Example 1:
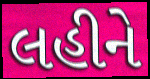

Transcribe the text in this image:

લહીને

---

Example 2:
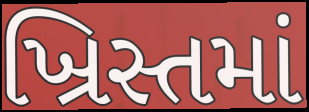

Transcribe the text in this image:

ખ્રિસ્તમાં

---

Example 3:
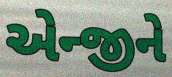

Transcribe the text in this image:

એન્જીને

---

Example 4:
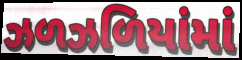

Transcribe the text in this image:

ઝળઝળિયાંમાં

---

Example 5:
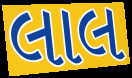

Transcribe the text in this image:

લાલ